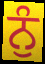
ਨੁੰ